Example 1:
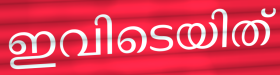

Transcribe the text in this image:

ഇവിടെയിത്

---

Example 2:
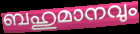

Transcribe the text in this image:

ബഹുമാനവും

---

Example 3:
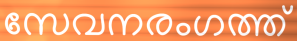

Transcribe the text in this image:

സേവനരംഗത്ത്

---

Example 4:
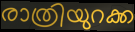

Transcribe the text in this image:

രാത്രിയുറക്ക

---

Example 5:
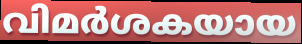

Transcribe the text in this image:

വിമർശകയായ